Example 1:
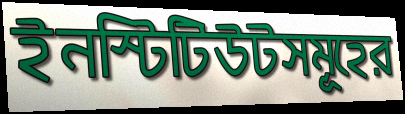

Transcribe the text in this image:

ইনস্টিটিউটসমূহের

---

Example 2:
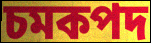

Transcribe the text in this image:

চমকপদ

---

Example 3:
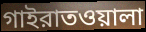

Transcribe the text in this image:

গাইরাতওয়ালা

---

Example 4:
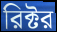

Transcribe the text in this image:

রিক্টর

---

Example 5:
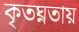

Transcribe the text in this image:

কৃতঘ্নতায়